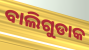
ବାଲିଗୁଡାକ